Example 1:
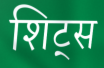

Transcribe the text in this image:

शिट्स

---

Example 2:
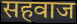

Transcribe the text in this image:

सहवाज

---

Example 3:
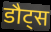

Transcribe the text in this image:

डौट्स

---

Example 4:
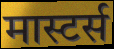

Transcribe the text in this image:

मास्टर्स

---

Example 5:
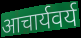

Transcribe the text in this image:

आचार्यवर्य